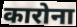
कारोना